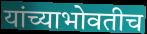
यांच्याभोवतीच